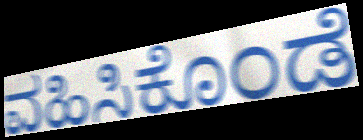
ವಹಿಸಿಕೊಂಡೆ